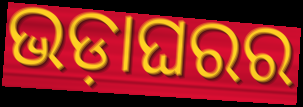
ଭଡ଼ାଘରର